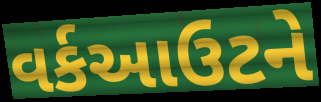
વર્કઆઉટને